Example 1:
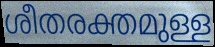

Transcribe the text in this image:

ശീതരക്തമുള്ള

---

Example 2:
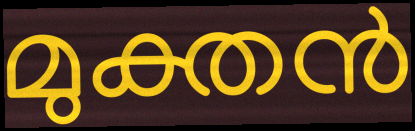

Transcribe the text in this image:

മുക്തൻ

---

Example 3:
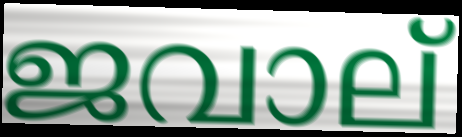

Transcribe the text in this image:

ജവാല്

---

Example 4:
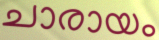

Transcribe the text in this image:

ചാരായം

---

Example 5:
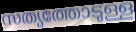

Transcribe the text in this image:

സത്യത്തോടുള്ള